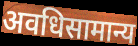
अवधिसामान्य